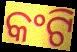
କଂଟି